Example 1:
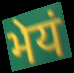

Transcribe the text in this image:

भेयं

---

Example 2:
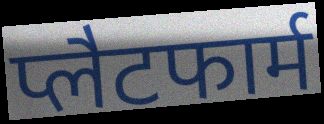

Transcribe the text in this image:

प्लैटफार्म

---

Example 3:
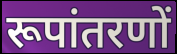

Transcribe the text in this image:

रूपांतरणों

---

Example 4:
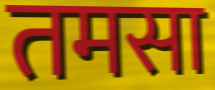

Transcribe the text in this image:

तमसा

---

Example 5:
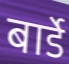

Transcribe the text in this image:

बार्डे